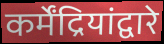
कर्मेंद्रियांद्वारे